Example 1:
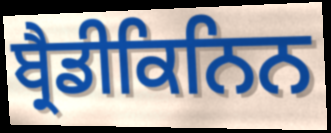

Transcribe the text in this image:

ਬ੍ਰੈਡੀਕਿਨਿਨ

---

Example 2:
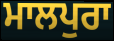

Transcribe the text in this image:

ਮਾਲਪੁਰਾ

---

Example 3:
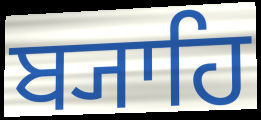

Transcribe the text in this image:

ਬ੍ਯਾਹਿ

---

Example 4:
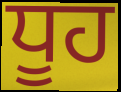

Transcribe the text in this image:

ਧੂਹ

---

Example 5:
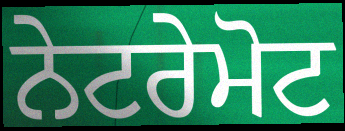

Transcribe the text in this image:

ਨੇਟਰੇਮੋਟ